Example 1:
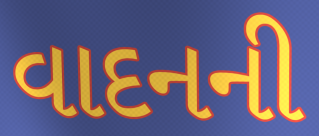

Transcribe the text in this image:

વાદનની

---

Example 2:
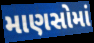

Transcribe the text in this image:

માણસોમાં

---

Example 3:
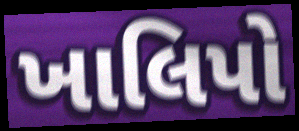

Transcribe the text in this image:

ખાલિપો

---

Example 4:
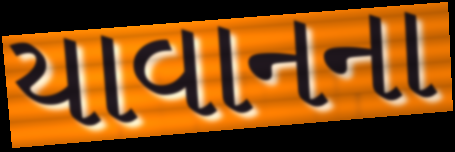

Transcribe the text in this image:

યાવાનના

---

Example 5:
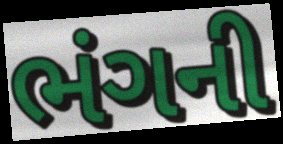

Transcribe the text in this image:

ભંગની